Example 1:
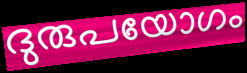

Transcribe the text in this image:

ദുരുപയോഗം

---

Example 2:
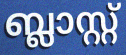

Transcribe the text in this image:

ബ്ലാസ്റ്റ്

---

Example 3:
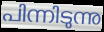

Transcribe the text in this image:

പിന്നിടുന്നു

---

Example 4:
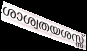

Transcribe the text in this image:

ശാശ്വതയശസ്സ്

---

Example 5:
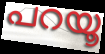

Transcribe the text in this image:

പറയൂ